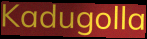
Kadugolla